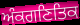
ਅੰਕਗਣਿਤਿਕ